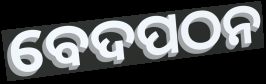
ବେଦପଠନ